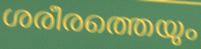
ശരീരത്തെയും